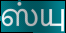
ஸ்யு